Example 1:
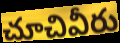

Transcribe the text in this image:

చూచివీరు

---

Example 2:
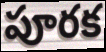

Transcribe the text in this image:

పూరక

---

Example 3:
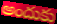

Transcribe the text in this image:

అందుకు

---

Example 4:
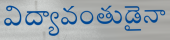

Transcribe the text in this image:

విద్యావంతుడైనా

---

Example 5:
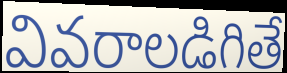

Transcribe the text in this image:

వివరాలడిగితే